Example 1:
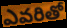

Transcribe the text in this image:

ఎవరితో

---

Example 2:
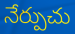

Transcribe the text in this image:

నేర్పుచు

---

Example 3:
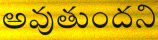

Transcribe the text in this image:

అవుతుందని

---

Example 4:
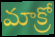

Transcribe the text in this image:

మాక్రో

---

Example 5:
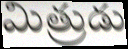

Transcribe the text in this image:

మిత్రుడు